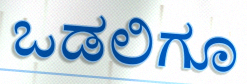
ಒಡಲಿಗೂ